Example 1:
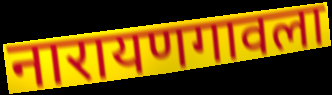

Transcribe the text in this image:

नारायणगावला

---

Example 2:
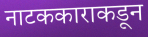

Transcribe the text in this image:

नाटककाराकडून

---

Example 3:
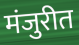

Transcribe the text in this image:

मंजुरीत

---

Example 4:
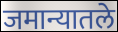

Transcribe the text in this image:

जमान्यातले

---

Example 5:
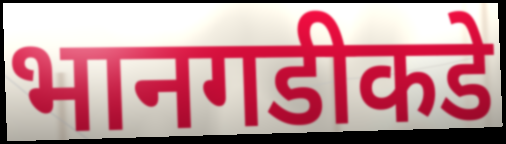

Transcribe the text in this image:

भानगडीकडे